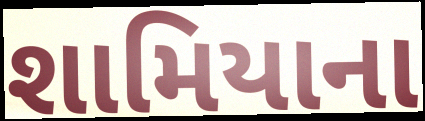
શામિયાના